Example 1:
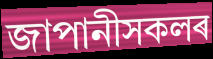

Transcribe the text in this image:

জাপানীসকলৰ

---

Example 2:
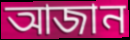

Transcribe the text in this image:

আজান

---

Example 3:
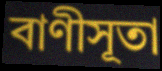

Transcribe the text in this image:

বাণীসূতা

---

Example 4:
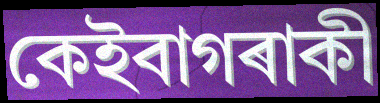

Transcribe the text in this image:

কেইবাগৰাকী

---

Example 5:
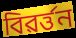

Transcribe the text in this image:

বিৱৰ্ত্তন